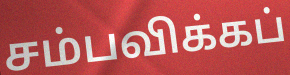
சம்பவிக்கப்